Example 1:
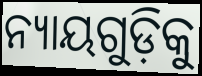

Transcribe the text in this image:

ନ୍ୟାୟଗୁଡ଼ିକୁ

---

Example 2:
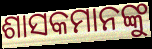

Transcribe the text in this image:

ଶାସକମାନଙ୍କୁ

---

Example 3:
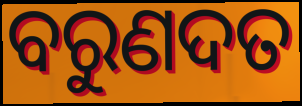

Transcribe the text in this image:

ବରୁଣଦତ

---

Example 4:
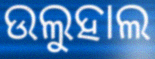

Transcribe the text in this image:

ଉଲୁହାଲ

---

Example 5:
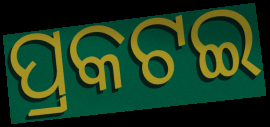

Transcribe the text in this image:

ପ୍ରକଟଇ